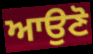
ਆਉਣੋ